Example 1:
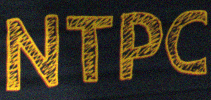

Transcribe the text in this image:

NTPC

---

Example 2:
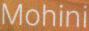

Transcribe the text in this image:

Mohini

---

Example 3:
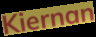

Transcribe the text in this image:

Kiernan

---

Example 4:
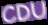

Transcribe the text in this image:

CDU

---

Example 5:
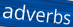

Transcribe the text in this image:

adverbs